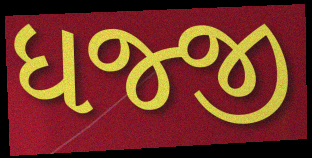
ધજ્જી